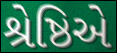
શ્રેષ્ઠિએ